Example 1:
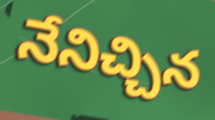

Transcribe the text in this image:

నేనిచ్చిన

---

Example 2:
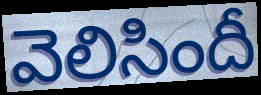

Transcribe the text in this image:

వెలిసిందీ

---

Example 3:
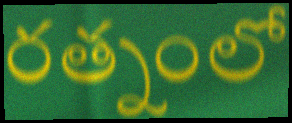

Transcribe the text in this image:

రత్నంలో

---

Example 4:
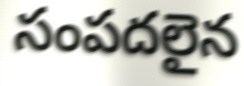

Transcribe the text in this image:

సంపదలైన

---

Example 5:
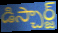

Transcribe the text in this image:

డిస్చార్జ్